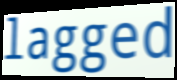
lagged